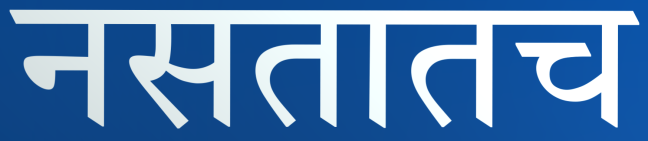
नसतातच